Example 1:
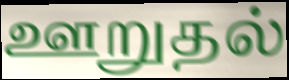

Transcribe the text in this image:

ஊறுதல்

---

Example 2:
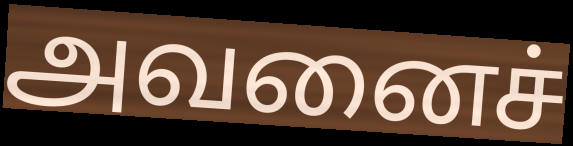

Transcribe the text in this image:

அவனைச்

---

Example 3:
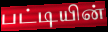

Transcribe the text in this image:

பட்டியின்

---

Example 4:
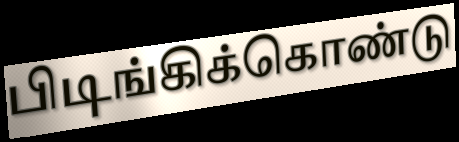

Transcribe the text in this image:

பிடிங்கிக்கொண்டு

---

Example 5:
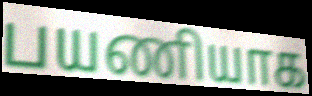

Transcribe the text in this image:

பயணியாக